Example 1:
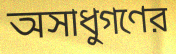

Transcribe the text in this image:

অসাধুগণের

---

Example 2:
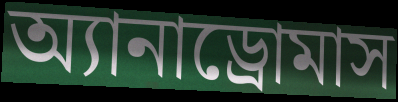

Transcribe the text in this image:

অ্যানাড্রোমাস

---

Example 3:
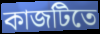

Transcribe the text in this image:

কাজটিতে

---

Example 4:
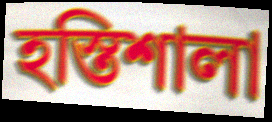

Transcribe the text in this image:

হস্তিশালা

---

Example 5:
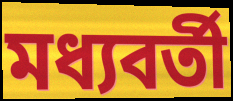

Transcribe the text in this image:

মধ্যবর্তী